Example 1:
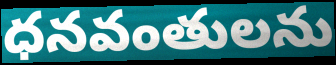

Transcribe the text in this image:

ధనవంతులను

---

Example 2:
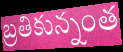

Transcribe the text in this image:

బ్రతికున్నంత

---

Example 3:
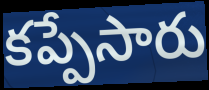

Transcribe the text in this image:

కప్పేసారు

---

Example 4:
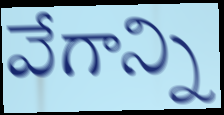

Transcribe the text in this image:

వేగాన్ని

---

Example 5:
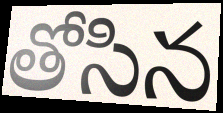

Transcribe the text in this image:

తోసిన